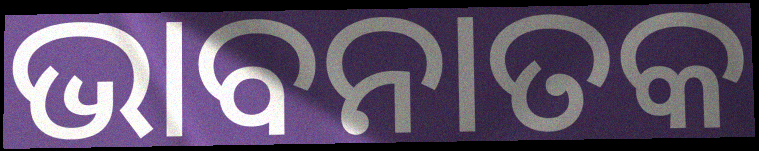
ଭାବନାତକ